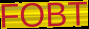
FOBT